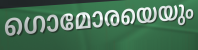
ഗൊമോരയെയും